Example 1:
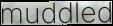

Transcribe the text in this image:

muddled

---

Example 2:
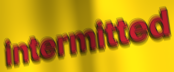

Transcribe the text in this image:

intermitted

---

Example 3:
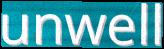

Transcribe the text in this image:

unwell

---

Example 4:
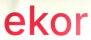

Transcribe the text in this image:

ekor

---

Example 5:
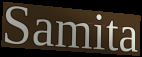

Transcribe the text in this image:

Samita